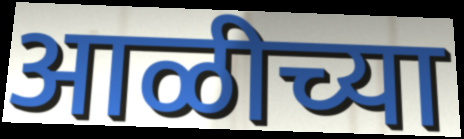
आळीच्या